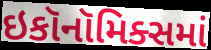
ઇકૉનૉમિક્સમાં